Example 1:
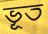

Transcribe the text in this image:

ভূত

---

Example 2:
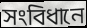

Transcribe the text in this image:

সংবিধানে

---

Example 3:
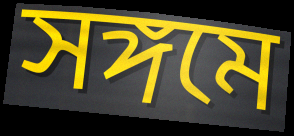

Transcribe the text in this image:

সঙ্গমে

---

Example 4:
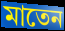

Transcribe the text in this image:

মাতেন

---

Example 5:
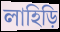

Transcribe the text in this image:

লাহিড়ি